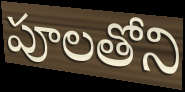
పూలతోని